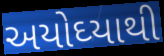
અયોઘ્યાથી